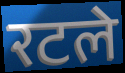
रटले